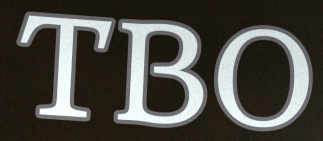
TBO